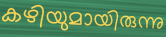
കഴിയുമായിരുന്നു